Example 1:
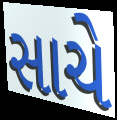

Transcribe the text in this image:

સાચે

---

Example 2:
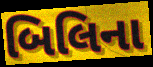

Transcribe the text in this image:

બિલિના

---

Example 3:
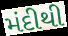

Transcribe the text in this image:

મંદીથી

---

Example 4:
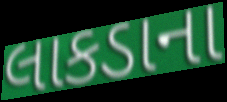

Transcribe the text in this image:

લાકડાના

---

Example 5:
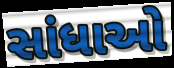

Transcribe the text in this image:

સાંધાઓ